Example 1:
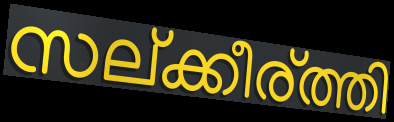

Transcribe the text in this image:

സല്ക്കീര്ത്തി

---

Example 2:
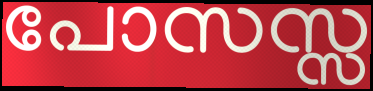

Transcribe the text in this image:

പോസസ്സ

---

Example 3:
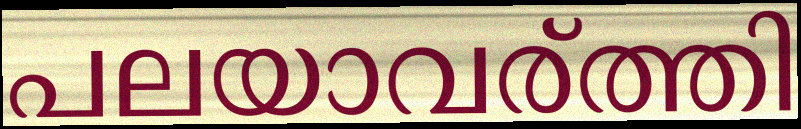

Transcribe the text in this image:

പലയാവര്ത്തി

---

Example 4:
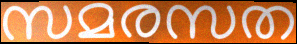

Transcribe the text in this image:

സമരസത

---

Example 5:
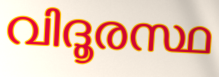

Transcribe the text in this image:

വിദൂരസ്ഥ